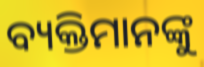
ବ୍ୟକ୍ତିମାନଙ୍କୁ